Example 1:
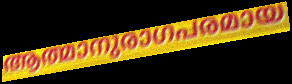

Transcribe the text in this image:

ആത്മാനുരാഗപരമായ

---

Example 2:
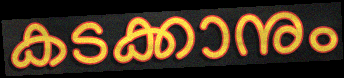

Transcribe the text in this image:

കടക്കാനും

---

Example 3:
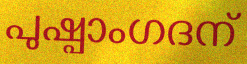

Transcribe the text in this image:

പുഷ്പാംഗദന്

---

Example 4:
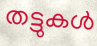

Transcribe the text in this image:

തട്ടുകൾ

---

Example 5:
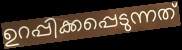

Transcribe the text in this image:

ഉറപ്പിക്കപ്പെടുന്നത്